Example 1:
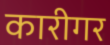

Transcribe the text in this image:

कारीगर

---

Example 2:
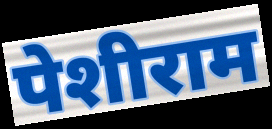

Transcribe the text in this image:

पेशीराम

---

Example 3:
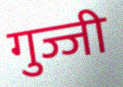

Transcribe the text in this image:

गुज्जी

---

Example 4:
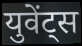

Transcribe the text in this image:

युवेंट्स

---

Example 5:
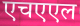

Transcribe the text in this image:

एचएएल